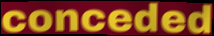
conceded